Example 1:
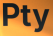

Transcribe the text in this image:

Pty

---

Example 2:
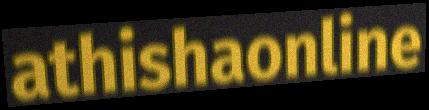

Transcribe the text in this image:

athishaonline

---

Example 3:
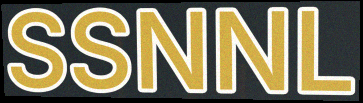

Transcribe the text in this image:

SSNNL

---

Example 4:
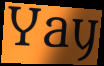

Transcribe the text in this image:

Yay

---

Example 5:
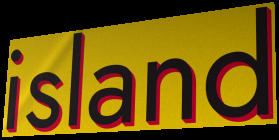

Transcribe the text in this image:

island